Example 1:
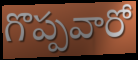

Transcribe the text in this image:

గొప్పవారో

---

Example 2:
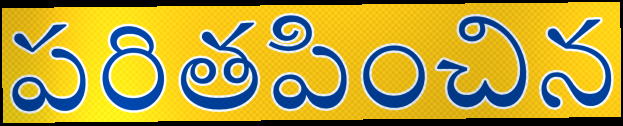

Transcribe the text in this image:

పరితపించిన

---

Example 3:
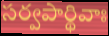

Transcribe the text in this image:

సర్వపార్థివాః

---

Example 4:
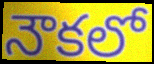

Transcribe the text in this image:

నౌకలో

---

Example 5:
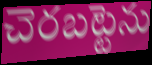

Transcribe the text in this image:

చెరబట్టెను